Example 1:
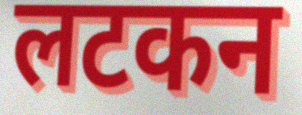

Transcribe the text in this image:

लटकन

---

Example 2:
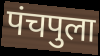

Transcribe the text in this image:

पंचपुला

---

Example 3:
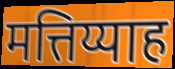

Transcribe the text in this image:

मत्तिय्याह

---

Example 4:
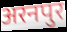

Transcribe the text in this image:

अरनपुर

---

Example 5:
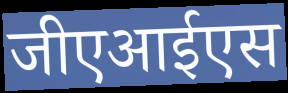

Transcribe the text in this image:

जीएआईएस